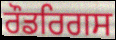
ਰੌਡਰਿਗਸ